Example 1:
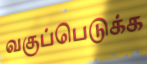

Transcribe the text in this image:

வகுப்பெடுக்க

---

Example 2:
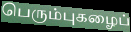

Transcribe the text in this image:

பெரும்புகழைப்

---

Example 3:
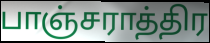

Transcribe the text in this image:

பாஞ்சராத்திர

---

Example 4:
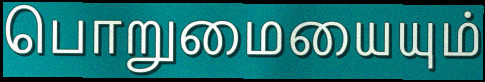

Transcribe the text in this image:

பொறுமையையும்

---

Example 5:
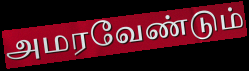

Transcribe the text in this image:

அமரவேண்டும்